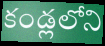
కండ్లలోని